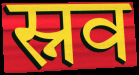
स्नव